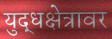
युद्धक्षेत्रावर